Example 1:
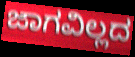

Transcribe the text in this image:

ಜಾಗವಿಲ್ಲದ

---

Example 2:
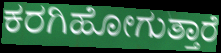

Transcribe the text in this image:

ಕರಗಿಹೋಗುತ್ತಾರೆ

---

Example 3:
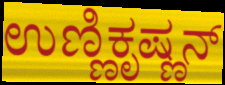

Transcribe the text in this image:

ಉಣ್ಣಿಕೃಷ್ಣನ್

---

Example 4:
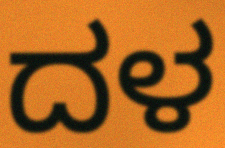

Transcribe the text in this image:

ದಳ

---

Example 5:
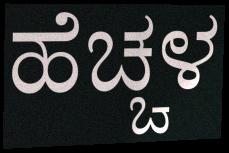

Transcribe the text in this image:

ಹೆಚ್ಚಳ